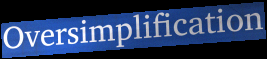
Oversimplification